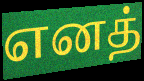
எனத்